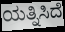
ಯತ್ನಿಸಿದೆ